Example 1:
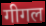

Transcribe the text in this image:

गीगल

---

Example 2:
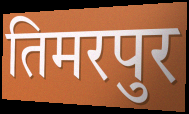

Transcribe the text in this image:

तिमरपुर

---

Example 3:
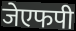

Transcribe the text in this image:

जेएफपी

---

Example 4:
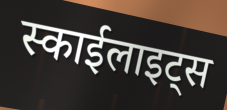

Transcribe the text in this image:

स्काईलाइट्स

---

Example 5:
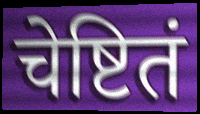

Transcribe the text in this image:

चेष्टितं